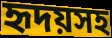
হৃদয়সহ